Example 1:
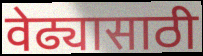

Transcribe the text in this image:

वेढ्यासाठी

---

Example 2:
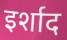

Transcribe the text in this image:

इर्शाद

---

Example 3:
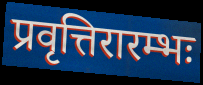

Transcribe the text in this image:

प्रवृत्तिरारम्भः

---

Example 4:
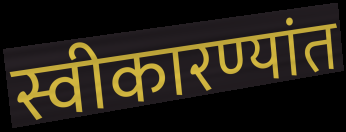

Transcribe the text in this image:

स्वीकारण्यांत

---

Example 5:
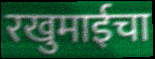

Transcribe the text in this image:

रखुमाईचा